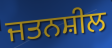
ਜਤਨਸ਼ੀਲ